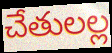
చేతులల్ల